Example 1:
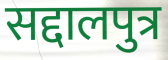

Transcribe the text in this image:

सद्दालपुत्र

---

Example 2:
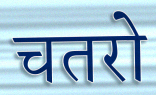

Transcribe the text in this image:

चतरो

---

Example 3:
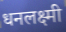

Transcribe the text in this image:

धनलक्ष्मी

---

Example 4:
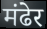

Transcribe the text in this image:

मंढेर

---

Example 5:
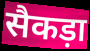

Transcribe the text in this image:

सैकड़ा